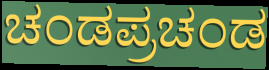
ಚಂಡಪ್ರಚಂಡ